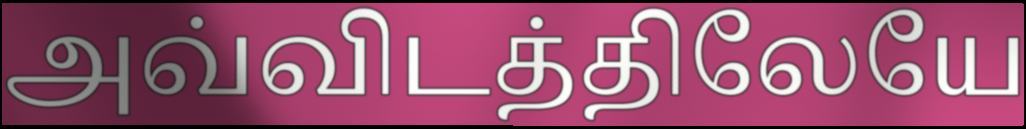
அவ்விடத்திலேயே